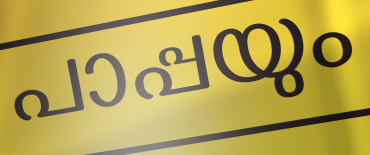
പാപ്പയും